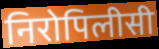
निरोपिलीसी